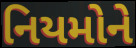
નિયમોને